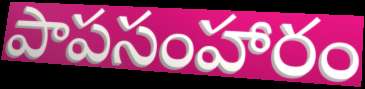
పాపసంహారం